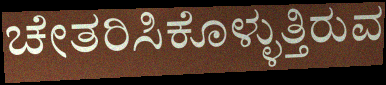
ಚೇತರಿಸಿಕೊಳ್ಳುತ್ತಿರುವ